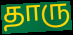
தாரு